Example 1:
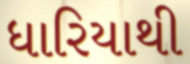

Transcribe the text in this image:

ધારિયાથી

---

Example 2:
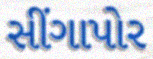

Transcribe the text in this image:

સીંગાપોર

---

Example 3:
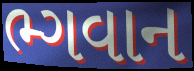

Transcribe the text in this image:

ભ્ગવાન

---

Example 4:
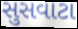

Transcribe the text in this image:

સુસવાટા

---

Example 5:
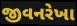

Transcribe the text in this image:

જીવનરેખા